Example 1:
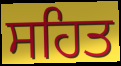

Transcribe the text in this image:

ਸਹਿਤ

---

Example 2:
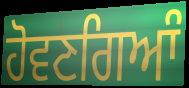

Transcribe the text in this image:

ਹੋਵਣਗਿਆੰ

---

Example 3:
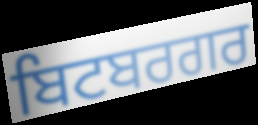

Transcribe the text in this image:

ਬਿਟਬਰਗਰ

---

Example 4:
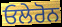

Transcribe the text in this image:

ਓਲੇਰੋਨ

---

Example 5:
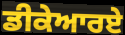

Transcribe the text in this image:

ਡੀਕੇਆਰਏ